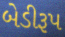
બેડીરૂપ